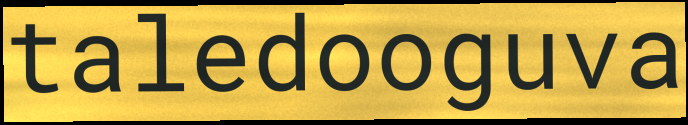
taledooguva